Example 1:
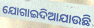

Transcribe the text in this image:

ଯୋଗାଇଦିଆଯାଉଛି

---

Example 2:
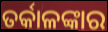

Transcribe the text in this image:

ତର୍କାଳଙ୍କାର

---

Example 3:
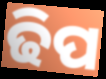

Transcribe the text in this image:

ଢିପ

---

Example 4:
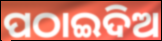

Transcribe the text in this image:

ପଠାଇଦିଅ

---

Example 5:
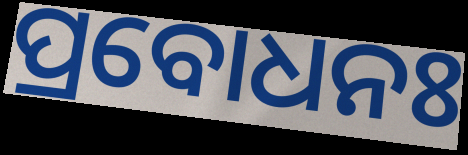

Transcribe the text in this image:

ପ୍ରବୋଧନଃ